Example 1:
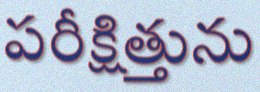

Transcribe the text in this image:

పరీక్షిత్తును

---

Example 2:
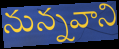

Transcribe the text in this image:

నున్నవాని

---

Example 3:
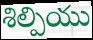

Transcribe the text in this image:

శిల్పియు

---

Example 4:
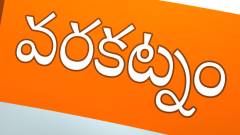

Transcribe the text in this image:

వరకట్నం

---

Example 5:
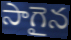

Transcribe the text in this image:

సాగైన